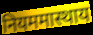
नियममास्थाय